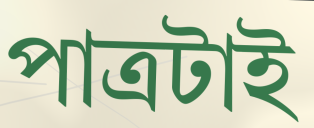
পাত্রটাই